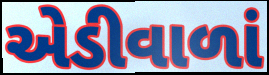
એડીવાળાં